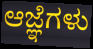
ಆಜ್ಞೆಗಳು